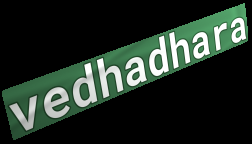
vedhadhara